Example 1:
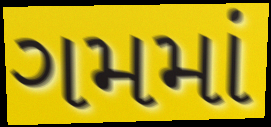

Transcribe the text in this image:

ગમમાં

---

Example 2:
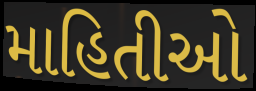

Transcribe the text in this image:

માહિતીઓ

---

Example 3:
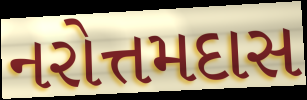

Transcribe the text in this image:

નરોત્તમદાસ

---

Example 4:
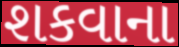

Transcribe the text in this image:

શકવાના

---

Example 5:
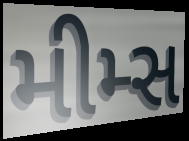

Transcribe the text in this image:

મીમ્સ